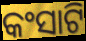
କଂସାଟି